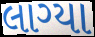
લાગ્યા